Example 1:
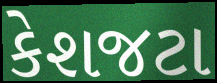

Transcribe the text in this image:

કેશજટા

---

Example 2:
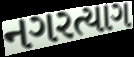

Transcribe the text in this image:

નગરત્યાગ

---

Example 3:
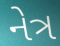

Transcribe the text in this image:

નેત્ર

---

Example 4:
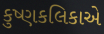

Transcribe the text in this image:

કુષ્ણકલિકાએ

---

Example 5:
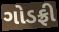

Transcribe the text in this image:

ગોડફ્રી